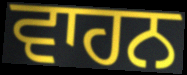
ਵਾਹਨ